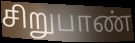
சிறுபாண்